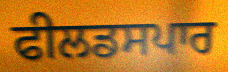
ਫੀਲਡਸਪਾਰ